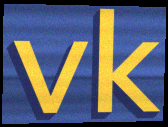
vk